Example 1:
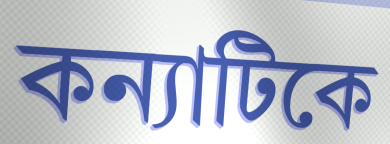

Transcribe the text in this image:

কন্যাটিকে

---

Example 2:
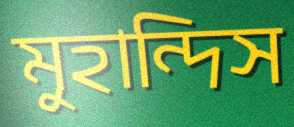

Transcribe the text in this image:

মুহান্দিস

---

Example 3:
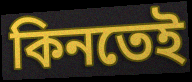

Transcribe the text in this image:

কিনতেই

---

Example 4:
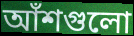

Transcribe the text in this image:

আঁশগুলো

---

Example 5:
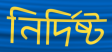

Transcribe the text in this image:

নির্দিষ্ট